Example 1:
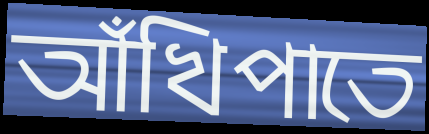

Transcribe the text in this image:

আঁখিপাতে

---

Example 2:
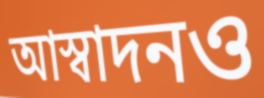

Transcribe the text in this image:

আস্বাদনও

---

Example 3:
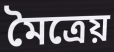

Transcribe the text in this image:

মৈত্রেয়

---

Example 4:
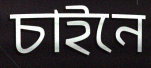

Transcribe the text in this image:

চাইনে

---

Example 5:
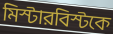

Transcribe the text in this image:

মিস্টারবিস্টকে